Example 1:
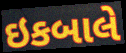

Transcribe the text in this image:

ઇકબાલે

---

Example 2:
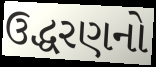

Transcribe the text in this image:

ઉદ્ધરણનો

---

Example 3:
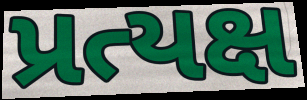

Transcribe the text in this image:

પ્રત્યક્ષ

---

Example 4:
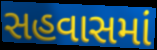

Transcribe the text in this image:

સહવાસમાં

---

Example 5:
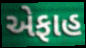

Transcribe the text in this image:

એફાહ